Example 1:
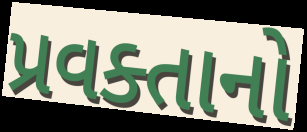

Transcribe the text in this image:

પ્રવક્તાનો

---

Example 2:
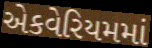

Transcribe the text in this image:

એકવેરિયમમાં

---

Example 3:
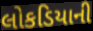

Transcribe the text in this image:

લોકડિયાની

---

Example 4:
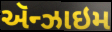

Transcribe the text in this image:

ઍન્ઝાઇમ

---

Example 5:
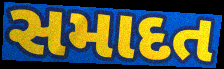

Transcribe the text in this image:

સમાદત